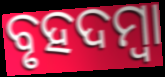
ବୃହଦମ୍ବା